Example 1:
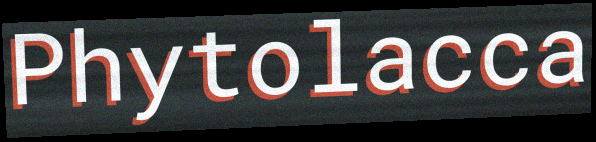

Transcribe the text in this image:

Phytolacca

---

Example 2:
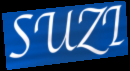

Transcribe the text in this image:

SUZI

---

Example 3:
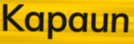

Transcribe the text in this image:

Kapaun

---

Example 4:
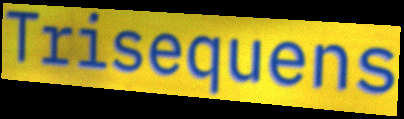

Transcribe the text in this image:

Trisequens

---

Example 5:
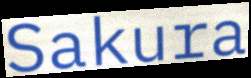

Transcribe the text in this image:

Sakura